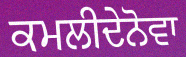
ਕਮਲੀਦੇਨੋਵਾ